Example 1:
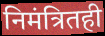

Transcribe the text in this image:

निमंत्रितही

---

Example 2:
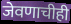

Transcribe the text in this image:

जेवणाचीही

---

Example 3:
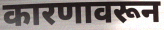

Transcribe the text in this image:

कारणावरून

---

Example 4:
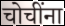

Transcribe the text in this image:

चोचींना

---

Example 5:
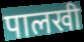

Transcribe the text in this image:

पालखी